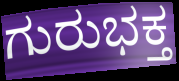
ಗುರುಭಕ್ತ